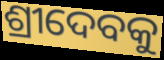
ଶ୍ରୀଦେବକୁ